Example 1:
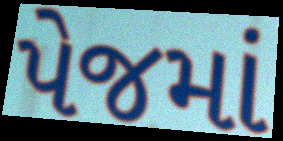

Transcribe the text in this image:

પેજમાં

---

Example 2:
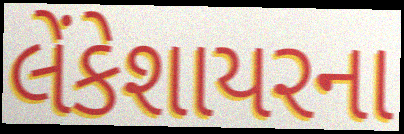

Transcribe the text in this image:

લેંકેશાયરના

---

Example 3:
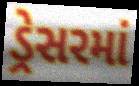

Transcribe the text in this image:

ડ્રેસરમાં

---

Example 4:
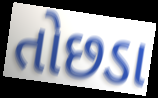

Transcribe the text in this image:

તોછડા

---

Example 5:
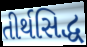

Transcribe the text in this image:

તીર્થસિદ્ધ